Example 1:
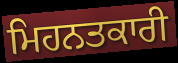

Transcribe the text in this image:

ਮਿਹਨਤਕਾਰੀ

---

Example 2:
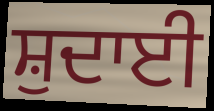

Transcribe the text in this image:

ਸ਼ੁਦਾਈ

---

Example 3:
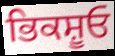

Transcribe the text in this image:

ਭਿਕਸ਼ੂਓ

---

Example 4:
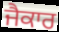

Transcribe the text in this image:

ਜੈਕਾਰ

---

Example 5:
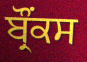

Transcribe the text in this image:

ਬ੍ਰੌਂਕਸ